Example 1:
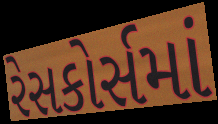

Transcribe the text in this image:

રેસકોર્સમાં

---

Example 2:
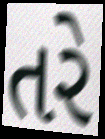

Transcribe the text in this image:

તરે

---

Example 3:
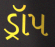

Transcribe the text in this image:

ડ્રૉપ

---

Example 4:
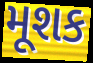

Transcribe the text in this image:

મૂશક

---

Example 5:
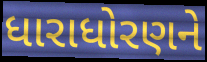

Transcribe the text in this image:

ધારાધોરણને